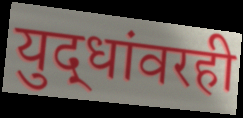
युद्धांवरही